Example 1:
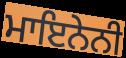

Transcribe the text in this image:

ਮਾਇਨੇਨੀ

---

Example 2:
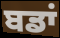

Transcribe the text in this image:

ਬਡਾਂ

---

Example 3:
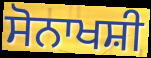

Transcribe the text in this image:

ਸੋਨਾਖਸ਼ੀ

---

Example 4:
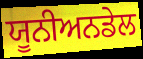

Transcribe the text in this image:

ਯੂਨੀਅਨਡੇਲ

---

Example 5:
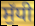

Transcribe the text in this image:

ਸੁੱਧੀ